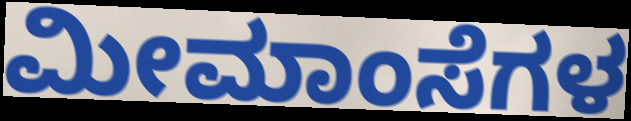
ಮೀಮಾಂಸೆಗಳ